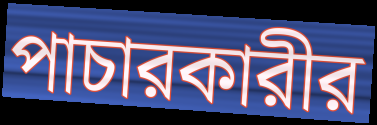
পাচারকারীর